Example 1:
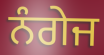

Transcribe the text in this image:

ਨੰਗੇਜ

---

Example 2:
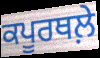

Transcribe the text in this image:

ਕਪੂਰਥਲ਼ੇ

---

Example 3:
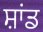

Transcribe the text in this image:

ਸ਼ਾਂਡ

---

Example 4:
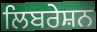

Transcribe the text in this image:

ਲਿਬਰੇਸ਼ਨ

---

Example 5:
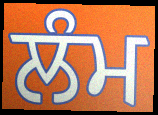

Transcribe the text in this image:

ਲੰਮ